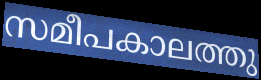
സമീപകാലത്തു